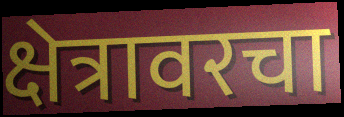
क्षेत्रावरचा